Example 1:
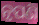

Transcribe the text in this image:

ନୃପଣି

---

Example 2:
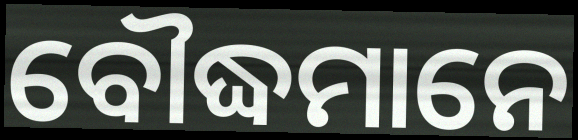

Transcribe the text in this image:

ବୌଦ୍ଧମାନେ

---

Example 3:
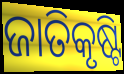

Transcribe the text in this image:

ଜାତିକୃଷ୍ଟି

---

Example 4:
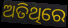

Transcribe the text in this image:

ଅତିଥିରେ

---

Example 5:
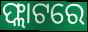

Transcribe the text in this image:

ଫ୍ଲାଟରେ